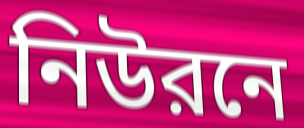
নিউরনে